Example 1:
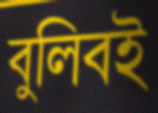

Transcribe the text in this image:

বুলিবই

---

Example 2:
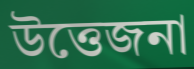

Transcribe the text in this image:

উত্তেজনা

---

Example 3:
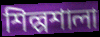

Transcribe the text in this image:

শিল্পশালা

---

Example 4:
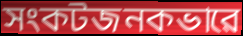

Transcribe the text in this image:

সংকটজনকভাৱে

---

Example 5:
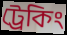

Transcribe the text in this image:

ট্ৰেকিং